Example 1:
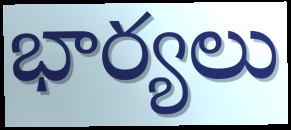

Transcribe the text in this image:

భార్యలు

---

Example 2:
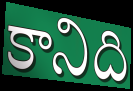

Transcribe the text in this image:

కానిది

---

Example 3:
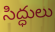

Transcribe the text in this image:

సిద్ధులు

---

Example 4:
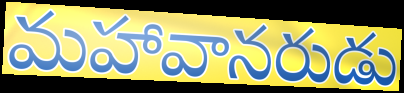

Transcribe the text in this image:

మహావానరుడు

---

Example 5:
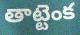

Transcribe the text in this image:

తాట్టెంక